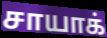
சாயாக்